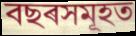
বছৰসমূহত